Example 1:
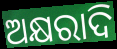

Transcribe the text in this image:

ଅକ୍ଷରାଦି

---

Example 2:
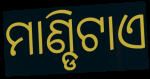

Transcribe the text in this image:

ମାଣ୍ଡିଟାଏ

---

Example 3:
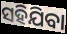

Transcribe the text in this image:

ସହିଯିବା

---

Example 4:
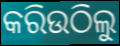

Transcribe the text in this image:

କରିଉଠିଲୁ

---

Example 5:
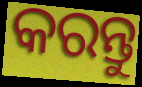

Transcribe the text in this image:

କରନ୍ତୁ